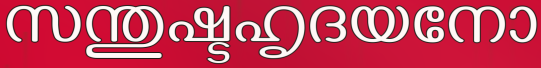
സന്തുഷ്ടഹൃദയനോ